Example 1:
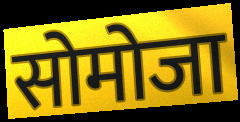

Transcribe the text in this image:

सोमोजा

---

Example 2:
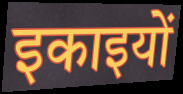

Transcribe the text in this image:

इकाइयों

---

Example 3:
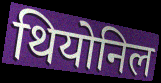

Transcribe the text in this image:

थियोनिल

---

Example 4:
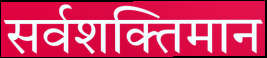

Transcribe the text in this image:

सर्वशक्तिमान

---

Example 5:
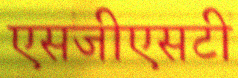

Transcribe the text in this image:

एसजीएसटी